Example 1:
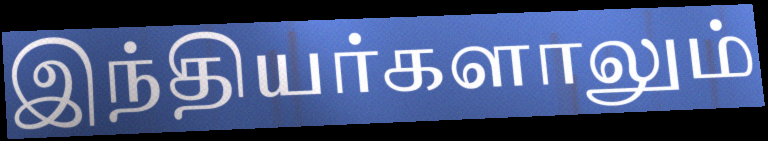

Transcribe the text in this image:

இந்தியர்களாலும்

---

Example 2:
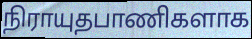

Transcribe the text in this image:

நிராயுதபாணிகளாக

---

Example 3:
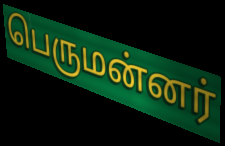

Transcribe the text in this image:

பெருமன்னர்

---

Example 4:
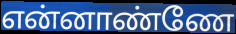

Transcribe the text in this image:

என்னாண்ணே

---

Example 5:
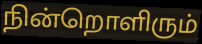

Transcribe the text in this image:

நின்றொளிரும்